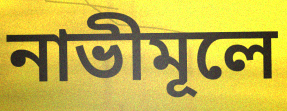
নাভীমূলে